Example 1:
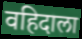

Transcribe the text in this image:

वहिदाला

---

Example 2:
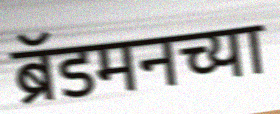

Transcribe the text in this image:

ब्रॅडमनच्या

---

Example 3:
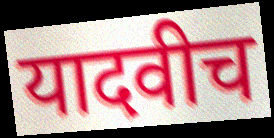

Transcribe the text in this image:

यादवीच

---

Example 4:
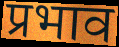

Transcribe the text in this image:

प्रभाव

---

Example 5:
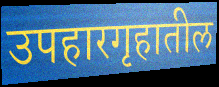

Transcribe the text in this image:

उपहारगृहातील